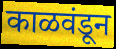
काळवंडून